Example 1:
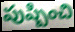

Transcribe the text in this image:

పుష్పించి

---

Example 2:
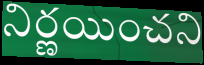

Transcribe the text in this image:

నిర్ణయించని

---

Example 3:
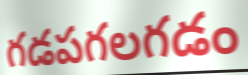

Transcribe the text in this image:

గడపగలగడం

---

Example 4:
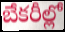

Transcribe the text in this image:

బేకరీల్లో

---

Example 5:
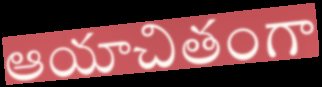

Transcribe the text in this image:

ఆయాచితంగా